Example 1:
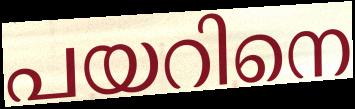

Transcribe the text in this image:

പയറിനെ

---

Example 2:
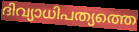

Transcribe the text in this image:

ദിവ്യാധിപത്യത്തെ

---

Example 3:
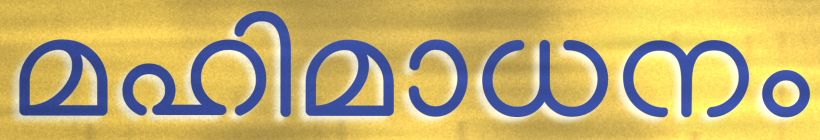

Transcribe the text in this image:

മഹിമാധനം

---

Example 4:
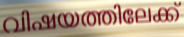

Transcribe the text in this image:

വിഷയത്തിലേക്ക്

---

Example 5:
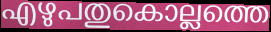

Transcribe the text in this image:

എഴുപതുകൊല്ലത്തെ